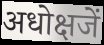
अधोक्षजें